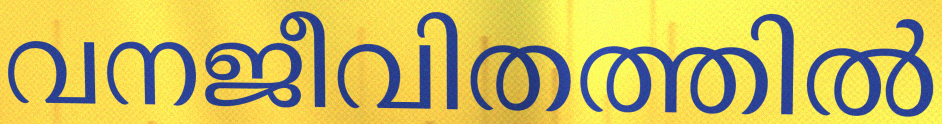
വനജീവിതത്തിൽ